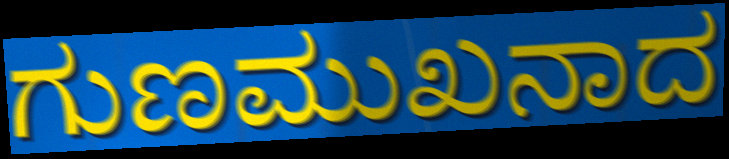
ಗುಣಮುಖನಾದ